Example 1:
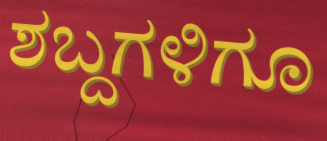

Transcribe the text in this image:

ಶಬ್ದಗಳಿಗೂ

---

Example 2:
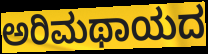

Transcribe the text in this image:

ಅರಿಮಥಾಯದ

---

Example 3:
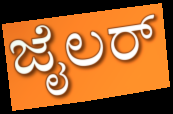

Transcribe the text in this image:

ಜೈಲರ್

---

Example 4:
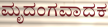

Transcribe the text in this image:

ಮೃದಂಗವಾದಕ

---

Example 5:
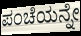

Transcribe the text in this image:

ಪಂಚೆಯನ್ನೇ